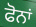
ਫੋਨਾਂ